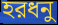
হরধনু